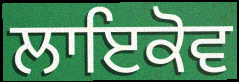
ਲਾਇਕੋਵ